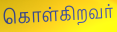
கொள்கிறவர்